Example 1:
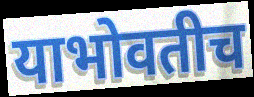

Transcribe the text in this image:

याभोवतीच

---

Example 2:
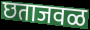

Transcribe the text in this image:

छताजवळ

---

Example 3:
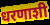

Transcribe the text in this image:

धरणाशी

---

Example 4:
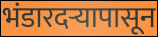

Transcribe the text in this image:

भंडारदऱ्यापासून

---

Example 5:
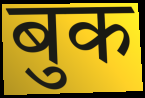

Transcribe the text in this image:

बुक